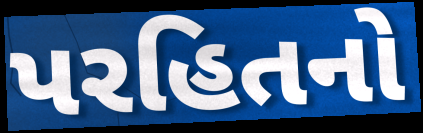
પરહિતનો